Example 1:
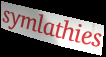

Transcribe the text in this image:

symlathies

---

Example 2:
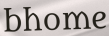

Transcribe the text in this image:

bhome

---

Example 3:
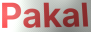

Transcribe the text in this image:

Pakal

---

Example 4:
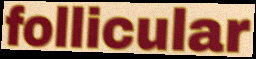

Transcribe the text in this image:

follicular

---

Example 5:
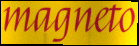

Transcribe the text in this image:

magneto